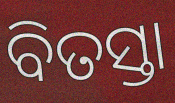
ବିତସ୍ତା